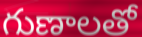
గుణాలతో